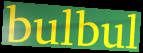
bulbul